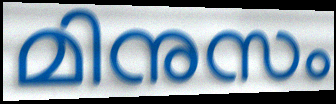
മിനുസം